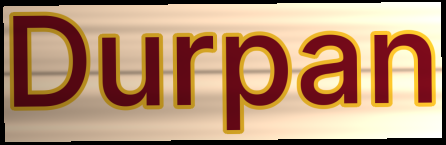
Durpan